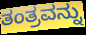
ತಂತ್ರವನ್ನು